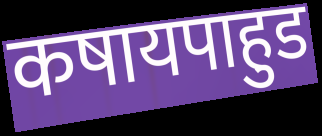
कषायपाहुड